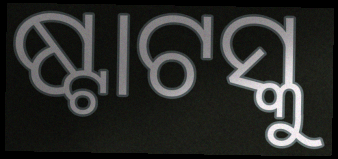
ଷ୍ଟାଟସ୍କୁ